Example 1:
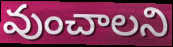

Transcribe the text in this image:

వుంచాలని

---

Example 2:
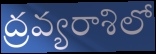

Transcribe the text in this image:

ద్రవ్యరాశిలో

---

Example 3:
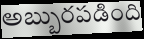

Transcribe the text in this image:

అబ్బురపడింది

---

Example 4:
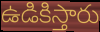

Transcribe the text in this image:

ఉడికిస్తారు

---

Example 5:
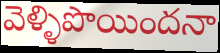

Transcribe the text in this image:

వెళ్ళిపొయిందనా